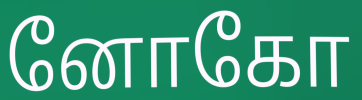
னோகோ